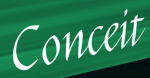
Conceit